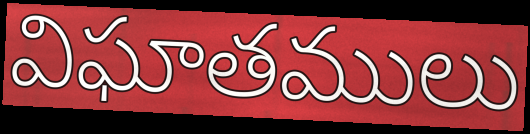
విఘాతములు